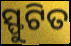
ସ୍ଫୁଟିତ